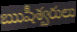
ఋషీశ్వరులు